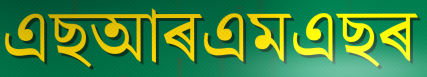
এছআৰএমএছৰ